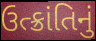
ઉત્ક્રાંતિનું